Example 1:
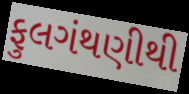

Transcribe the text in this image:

ફુલગંથણીથી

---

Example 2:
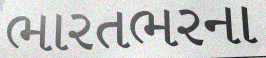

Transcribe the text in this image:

ભારતભરના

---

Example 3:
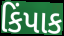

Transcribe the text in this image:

કિંપાક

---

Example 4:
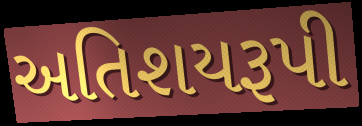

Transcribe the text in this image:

અતિશયરૂપી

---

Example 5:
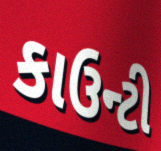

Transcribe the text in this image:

કાઉન્ટી